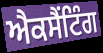
ਐਕਸੈਂਟਿੰਗ